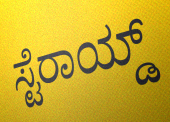
ಸ್ಟೆರಾಯ್ಡ್